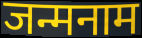
जन्मनाम